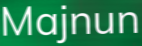
Majnun